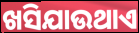
ଖସିଯାଉଥାଏ